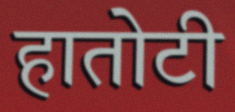
हातोटी